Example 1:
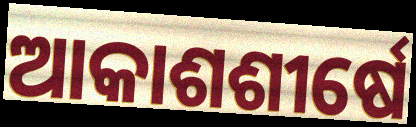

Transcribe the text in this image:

ଆକାଶଶୀର୍ଷେ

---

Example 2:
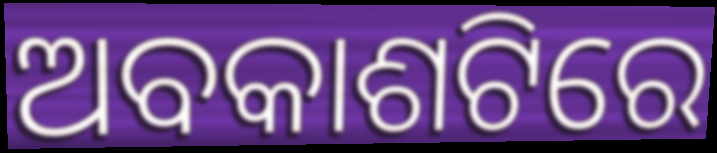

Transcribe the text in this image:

ଅବକାଶଟିରେ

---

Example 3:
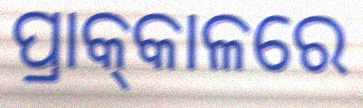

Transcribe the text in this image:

ପ୍ରାକ୍‌କାଳରେ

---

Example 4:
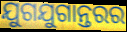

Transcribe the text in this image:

ଯୁଗଯୁଗାନ୍ତରର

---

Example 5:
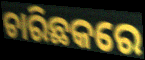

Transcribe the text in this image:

ଚାରିଛକରେ